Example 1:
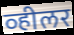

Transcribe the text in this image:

व्हीलर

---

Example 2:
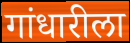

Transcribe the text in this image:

गांधारीला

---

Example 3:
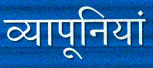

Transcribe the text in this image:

व्यापूनियां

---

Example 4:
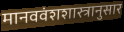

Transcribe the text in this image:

मानववंशशास्त्रानुसार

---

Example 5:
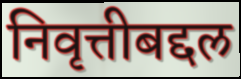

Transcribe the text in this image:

निवृत्तीबद्दल